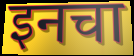
इनचा